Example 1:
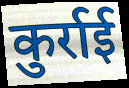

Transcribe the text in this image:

कुर्राई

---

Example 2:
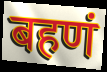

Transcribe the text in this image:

बहणं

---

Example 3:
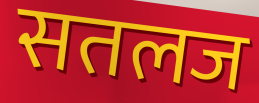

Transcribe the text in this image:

सतलज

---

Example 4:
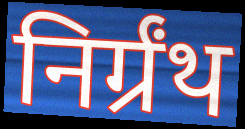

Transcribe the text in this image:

निर्ग्रंथ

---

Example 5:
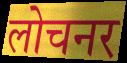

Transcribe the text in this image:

लोचनर